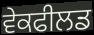
ਵੇਕਫੀਲਡ